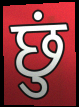
छुं